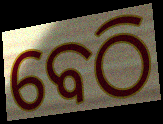
ବେଠି